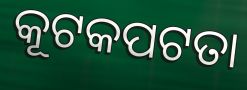
କୂଟକପଟତା